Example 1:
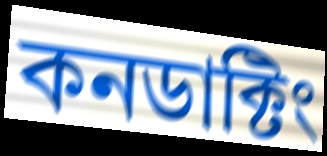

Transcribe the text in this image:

কনডাক্টিং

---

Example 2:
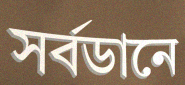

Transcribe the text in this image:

সর্বডানে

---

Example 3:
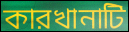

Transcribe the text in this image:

কারখানাটি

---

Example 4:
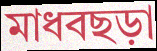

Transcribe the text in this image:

মাধবছড়া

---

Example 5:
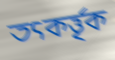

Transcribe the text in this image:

তৎকর্ত্তৃক